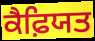
ਕੈਫ਼ਿਯਤ